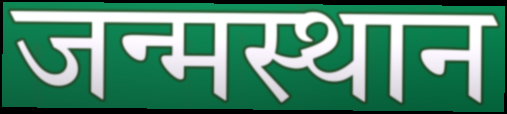
जन्मस्थान